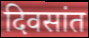
दिवसांत